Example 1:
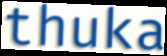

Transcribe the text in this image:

thuka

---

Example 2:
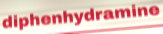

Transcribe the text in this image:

diphenhydramine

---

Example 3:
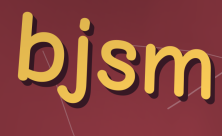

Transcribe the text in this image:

bjsm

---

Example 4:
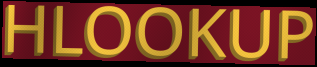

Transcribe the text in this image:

HLOOKUP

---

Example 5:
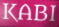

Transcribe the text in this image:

KABI